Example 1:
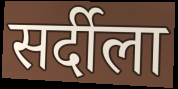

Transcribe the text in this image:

सर्दीला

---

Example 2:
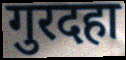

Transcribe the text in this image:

गुरदहा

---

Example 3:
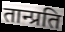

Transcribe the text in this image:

तान्प्रति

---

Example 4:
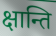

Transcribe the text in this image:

क्षान्ति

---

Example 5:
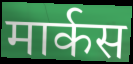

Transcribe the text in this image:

मार्कस